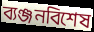
ব্যঞ্জনবিশেষ